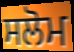
ਸਲੋਮ